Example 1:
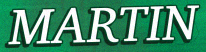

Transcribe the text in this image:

MARTIN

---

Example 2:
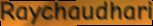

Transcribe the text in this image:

Raychaudhari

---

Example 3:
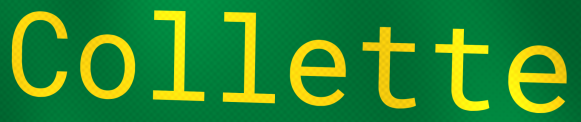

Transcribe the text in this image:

Collette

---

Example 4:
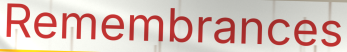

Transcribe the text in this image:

Remembrances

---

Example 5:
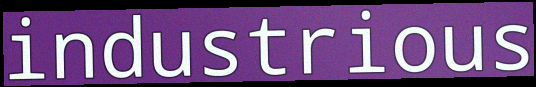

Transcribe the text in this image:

industrious